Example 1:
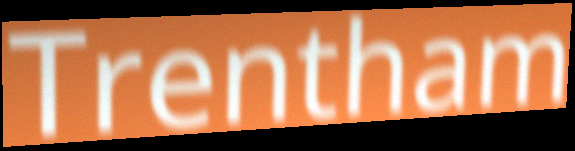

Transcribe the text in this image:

Trentham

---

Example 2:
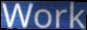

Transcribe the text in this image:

Work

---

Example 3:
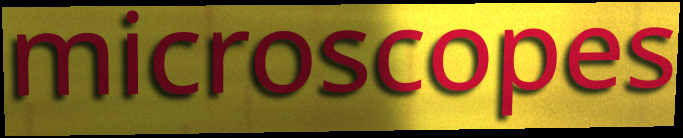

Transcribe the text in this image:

microscopes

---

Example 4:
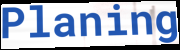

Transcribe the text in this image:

Planing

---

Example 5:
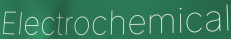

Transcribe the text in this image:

Electrochemical